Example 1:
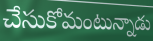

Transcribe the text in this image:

చేసుకోమంటున్నాడు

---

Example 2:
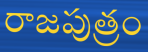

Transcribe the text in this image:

రాజపుత్రం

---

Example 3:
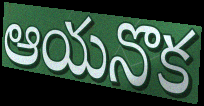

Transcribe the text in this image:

ఆయనొక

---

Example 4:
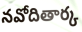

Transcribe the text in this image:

నవోదితార్క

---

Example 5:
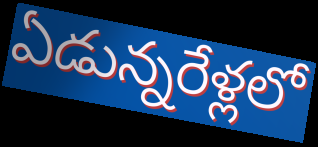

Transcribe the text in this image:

ఏడున్నరేళ్లలో